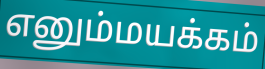
எனும்மயக்கம்